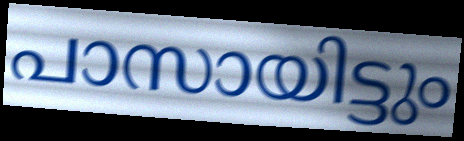
പാസായിട്ടും